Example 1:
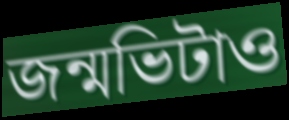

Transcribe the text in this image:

জন্মভিটাও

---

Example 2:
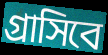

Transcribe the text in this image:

গ্রাসিবে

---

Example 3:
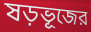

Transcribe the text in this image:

ষড়ভূজের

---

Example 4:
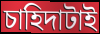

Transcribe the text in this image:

চাহিদাটাই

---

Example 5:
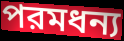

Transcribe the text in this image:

পরমধন্য